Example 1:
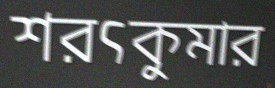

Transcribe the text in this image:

শরৎকুমার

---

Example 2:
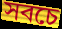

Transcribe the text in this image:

সবচে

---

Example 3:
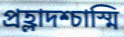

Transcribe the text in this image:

প্রহ্লাদশ্চাস্মি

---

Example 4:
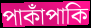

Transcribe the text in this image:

পাকাঁপাকি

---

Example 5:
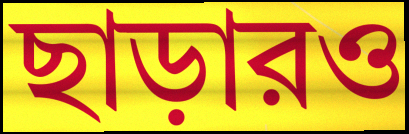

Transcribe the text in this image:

ছাড়ারও